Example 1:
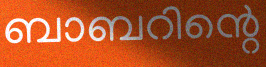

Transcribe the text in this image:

ബാബറിന്റെ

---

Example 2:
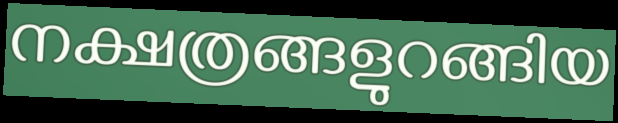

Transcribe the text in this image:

നക്ഷത്രങ്ങളുറങ്ങിയ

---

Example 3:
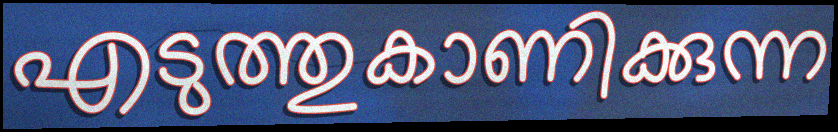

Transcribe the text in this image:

എടുത്തുകാണിക്കുന്ന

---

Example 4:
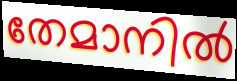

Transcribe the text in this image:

തേമാനിൽ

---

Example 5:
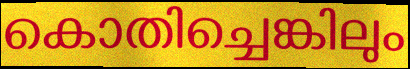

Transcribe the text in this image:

കൊതിച്ചെങ്കിലും